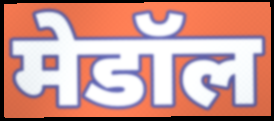
मेडॉल